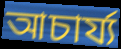
আচাৰ্য্য